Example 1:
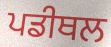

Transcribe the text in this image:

ਪਡੀਥਲ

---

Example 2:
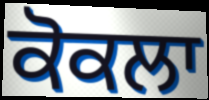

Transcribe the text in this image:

ਕੋਕਲਾ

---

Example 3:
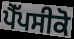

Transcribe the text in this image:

ਪੈੱਪਸੀਕੋ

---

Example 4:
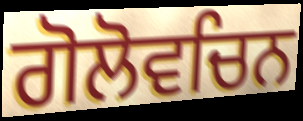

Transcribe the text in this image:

ਗੋਲੋਵਚਿਨ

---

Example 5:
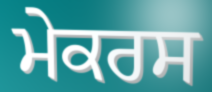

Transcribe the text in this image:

ਮੇਕਰਸ